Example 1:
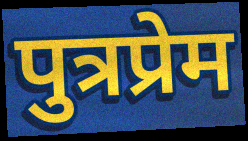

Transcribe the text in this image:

पुत्रप्रेम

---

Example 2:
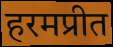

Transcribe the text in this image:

हरमप्रीत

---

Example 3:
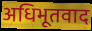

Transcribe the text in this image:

अधिभूतवाद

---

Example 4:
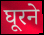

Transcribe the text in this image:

घूरने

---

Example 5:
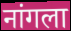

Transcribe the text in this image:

नांगला